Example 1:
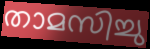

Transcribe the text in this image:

താമസിച്ചു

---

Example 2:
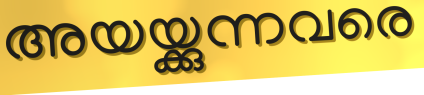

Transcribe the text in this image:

അയയ്ക്കുന്നവരെ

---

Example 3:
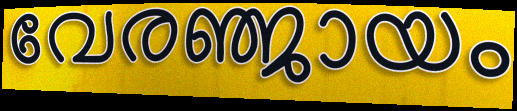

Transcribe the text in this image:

വേരഞ്ജായം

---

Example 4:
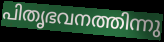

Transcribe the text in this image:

പിതൃഭവനത്തിന്നു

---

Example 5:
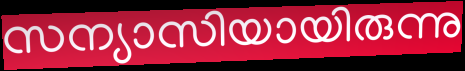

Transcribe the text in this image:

സന്യാസിയായിരുന്നു